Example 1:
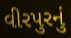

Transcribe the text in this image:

વીરપુરનું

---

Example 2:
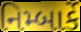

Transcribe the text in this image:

નિમ્બાર્કે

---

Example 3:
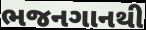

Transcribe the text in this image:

ભજનગાનથી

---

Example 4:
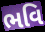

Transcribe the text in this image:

ભવિ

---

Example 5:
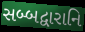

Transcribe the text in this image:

સબ્બદ્વારાનિ